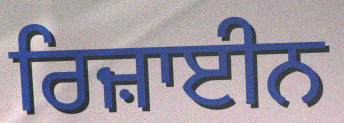
ਰਿਜ਼ਾਈਨ